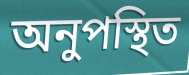
অনুপস্থিত